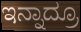
ಇನ್ನಾದ್ರೂ